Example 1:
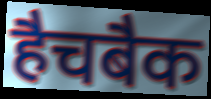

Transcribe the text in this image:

हैचबैक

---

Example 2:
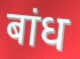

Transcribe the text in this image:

बांध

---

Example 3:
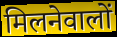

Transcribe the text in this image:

मिलनेवालों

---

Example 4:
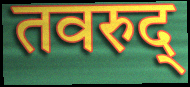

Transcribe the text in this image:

तवरुद्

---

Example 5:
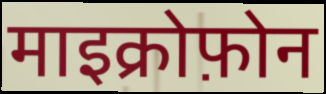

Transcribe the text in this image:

माइक्रोफ़ोन